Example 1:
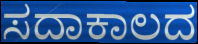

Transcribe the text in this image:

ಸದಾಕಾಲದ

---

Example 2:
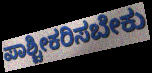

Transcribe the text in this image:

ಪಾಶ್ಚೀಕರಿಸಬೇಕು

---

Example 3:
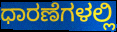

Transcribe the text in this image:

ಧಾರಣೆಗಳಲ್ಲಿ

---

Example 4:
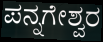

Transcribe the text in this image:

ಪನ್ನಗೇಶ್ವರ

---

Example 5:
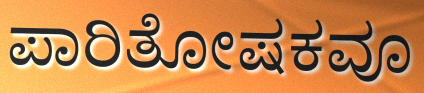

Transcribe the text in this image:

ಪಾರಿತೋಷಕವೂ